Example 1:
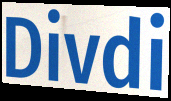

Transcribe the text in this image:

Divdi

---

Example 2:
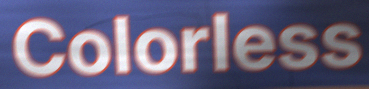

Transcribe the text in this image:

Colorless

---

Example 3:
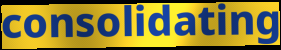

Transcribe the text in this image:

consolidating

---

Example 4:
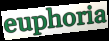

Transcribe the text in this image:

euphoria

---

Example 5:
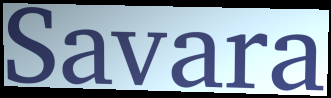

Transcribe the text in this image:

Savara